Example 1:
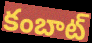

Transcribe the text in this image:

కంబాట్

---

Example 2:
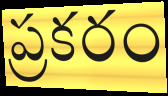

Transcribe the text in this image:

ప్రకరం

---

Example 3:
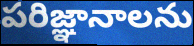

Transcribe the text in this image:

పరిజ్ఞానాలను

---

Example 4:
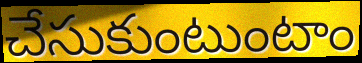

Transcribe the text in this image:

చేసుకుంటుంటాం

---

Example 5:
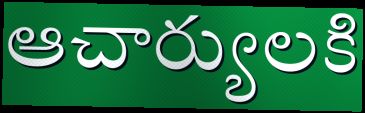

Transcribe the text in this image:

ఆచార్యులకి